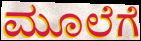
ಮೂಲೆಗೆ